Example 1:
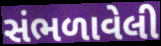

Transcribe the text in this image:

સંભળાવેલી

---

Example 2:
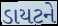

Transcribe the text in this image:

ડાયટને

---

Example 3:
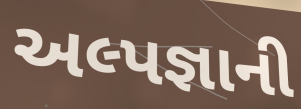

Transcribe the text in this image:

અલ્પજ્ઞાની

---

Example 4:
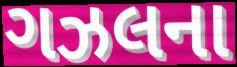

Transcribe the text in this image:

ગઝલના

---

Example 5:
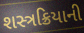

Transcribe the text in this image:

શસ્ત્રક્રિયાની